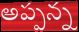
అప్పన్న